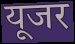
यूजर